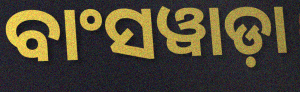
ବାଂସୱାଡ଼ା